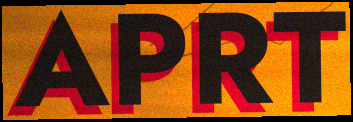
APRT